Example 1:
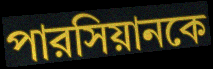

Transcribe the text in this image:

পারসিয়ানকে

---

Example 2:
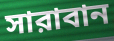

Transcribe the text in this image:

সারাবান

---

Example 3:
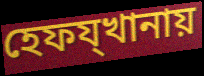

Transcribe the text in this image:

হেফয্খানায়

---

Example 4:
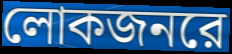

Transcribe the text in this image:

লোকজনরে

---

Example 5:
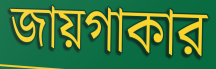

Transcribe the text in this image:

জায়গাকার